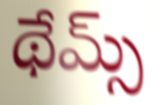
థేమ్స్